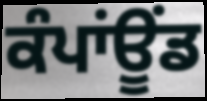
ਕੰਪਾਂਊਂਡ